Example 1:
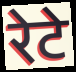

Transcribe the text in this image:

रेटे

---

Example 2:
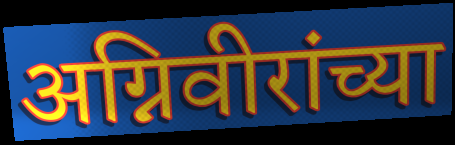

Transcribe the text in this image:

अग्निवीरांच्या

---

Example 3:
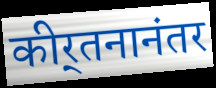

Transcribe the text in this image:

कीर्तनानंतर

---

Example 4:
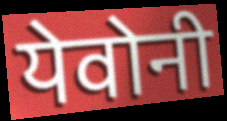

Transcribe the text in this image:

येवोनी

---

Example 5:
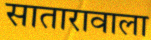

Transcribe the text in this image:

सातारावाला